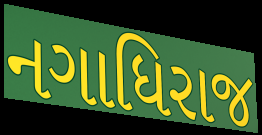
નગાધિરાજ